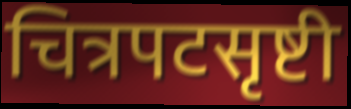
चित्रपटसृष्टी